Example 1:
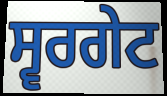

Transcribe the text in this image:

ਸ੍ਵਰਗੇਟ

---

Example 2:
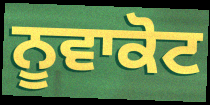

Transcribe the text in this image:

ਨੂਵਾਕੋਟ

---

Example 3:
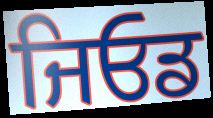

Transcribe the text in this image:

ਜਿਓਡ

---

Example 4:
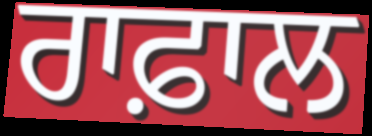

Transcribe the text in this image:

ਰਾਫ਼ਾਲ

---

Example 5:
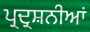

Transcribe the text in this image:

ਪ੍ਰਦ੍ਰਸ਼ਨੀਆਂ